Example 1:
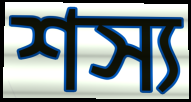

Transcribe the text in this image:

শস্য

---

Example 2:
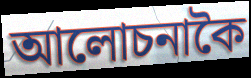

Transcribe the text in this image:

আলোচনাকৈ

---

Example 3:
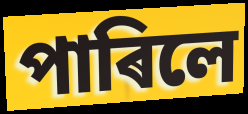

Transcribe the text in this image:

পাৰিলে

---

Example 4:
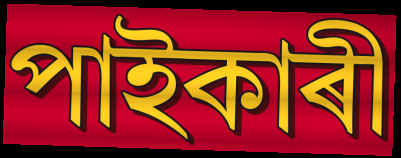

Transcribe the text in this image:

পাইকাৰী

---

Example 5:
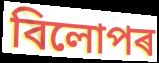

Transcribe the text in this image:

বিলোপৰ